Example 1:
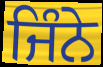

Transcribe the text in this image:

ਜਿੰਨੇ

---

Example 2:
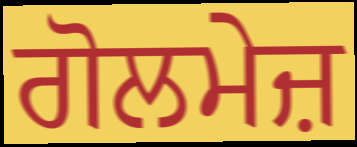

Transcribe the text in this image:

ਗੋਲਮੇਜ਼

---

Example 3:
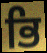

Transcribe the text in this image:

ਭਿ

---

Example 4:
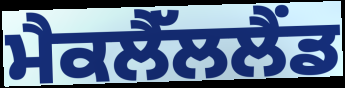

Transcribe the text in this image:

ਮੈਕਲੈੱਲਲੈਂਡ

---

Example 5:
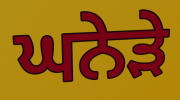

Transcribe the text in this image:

ਘਨੇੜੇ